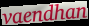
vaendhan